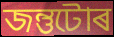
জন্তুটোৰ